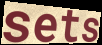
sets